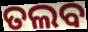
ତଲବ